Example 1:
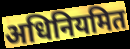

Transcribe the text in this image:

अधिनियमित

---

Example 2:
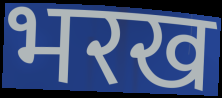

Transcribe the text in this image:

भरख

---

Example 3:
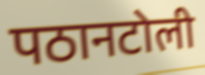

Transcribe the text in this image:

पठानटोली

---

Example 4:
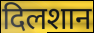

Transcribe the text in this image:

दिलशान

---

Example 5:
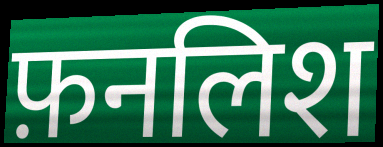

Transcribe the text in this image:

फ़नलिश